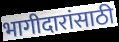
भागीदारांसाठी